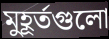
মুহূর্তগুলো